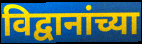
विद्वानांच्या